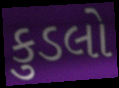
કુડલો